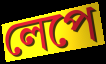
লেপে